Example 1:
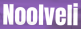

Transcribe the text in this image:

Noolveli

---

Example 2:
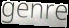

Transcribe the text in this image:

genre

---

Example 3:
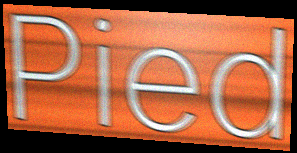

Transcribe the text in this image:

Pied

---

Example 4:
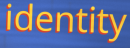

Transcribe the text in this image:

identity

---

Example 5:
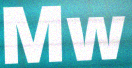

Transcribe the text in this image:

Mw